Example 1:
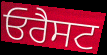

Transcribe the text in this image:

ਓਰੈਸਟ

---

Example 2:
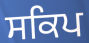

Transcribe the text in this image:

ਸਕਿਪ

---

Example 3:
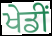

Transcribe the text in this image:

ਖੇਡੀਂ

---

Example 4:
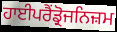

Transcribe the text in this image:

ਹਾਈਪਰੈਂਡ੍ਰੋਜਨਿਜ਼ਮ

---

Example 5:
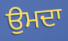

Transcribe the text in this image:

ਉਮਦਾ